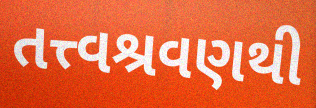
તત્ત્વશ્રવણથી